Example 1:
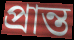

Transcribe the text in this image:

প্রান্ত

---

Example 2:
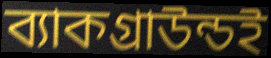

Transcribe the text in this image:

ব্যাকগ্রাউন্ডই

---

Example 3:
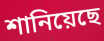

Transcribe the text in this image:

শানিয়েছে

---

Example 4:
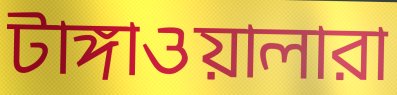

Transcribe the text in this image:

টাঙ্গাওয়ালারা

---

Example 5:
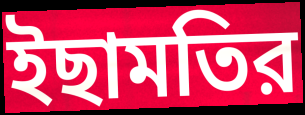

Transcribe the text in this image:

ইছামতির